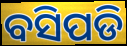
ବସିପଡି